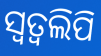
ସ୍ଵତ୍ଵଲିପି